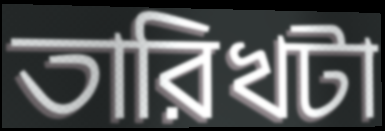
তারিখটা